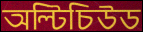
অল্টিচিউড